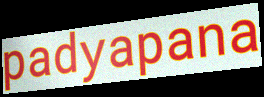
padyapana